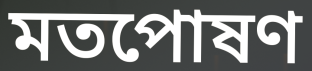
মতপোষণ